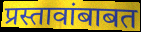
प्रस्तावांबाबत